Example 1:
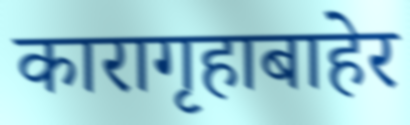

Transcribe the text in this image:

कारागृहाबाहेर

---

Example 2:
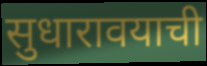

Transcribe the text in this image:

सुधारावयाची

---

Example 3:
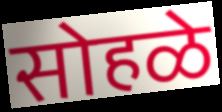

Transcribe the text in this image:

सोहळे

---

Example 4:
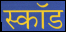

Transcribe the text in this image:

स्कॉड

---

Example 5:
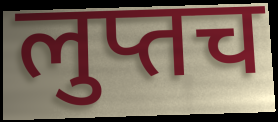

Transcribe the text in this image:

लुप्तच